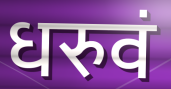
धरुवं